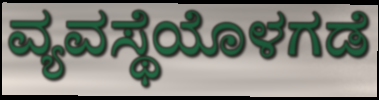
ವ್ಯವಸ್ಥೆಯೊಳಗಡೆ